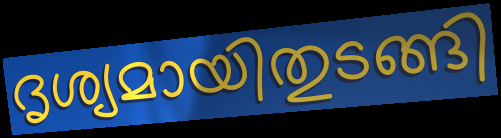
ദൃശ്യമായിതുടങ്ങി